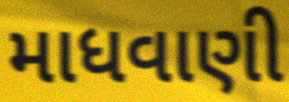
માધવાણી